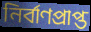
নির্বাণপ্রাপ্ত